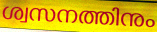
ശ്വസനത്തിനും